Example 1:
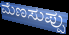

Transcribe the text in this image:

ಮೆಣಸುಪ್ಪು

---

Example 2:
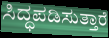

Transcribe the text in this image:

ಸಿದ್ಧಪಡಿಸುತ್ತಾರೆ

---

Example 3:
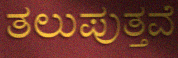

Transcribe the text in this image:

ತಲುಪುತ್ತವೆ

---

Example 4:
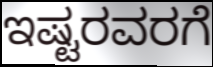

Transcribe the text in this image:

ಇಷ್ಟರವರಗೆ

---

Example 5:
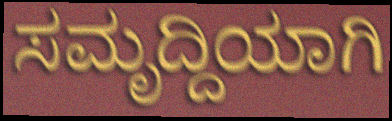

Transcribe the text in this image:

ಸಮೃದ್ದಿಯಾಗಿ